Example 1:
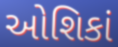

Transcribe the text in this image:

ઓશિકાં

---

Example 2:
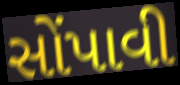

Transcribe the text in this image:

સોંપાવી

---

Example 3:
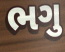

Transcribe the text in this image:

ભગુ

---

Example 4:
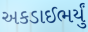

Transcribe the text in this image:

અકડાઈભર્યું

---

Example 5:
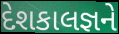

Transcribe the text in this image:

દેશકાલજ્ઞને